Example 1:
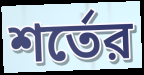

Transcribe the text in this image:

শর্তের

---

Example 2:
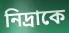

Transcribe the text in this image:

নিদ্রাকে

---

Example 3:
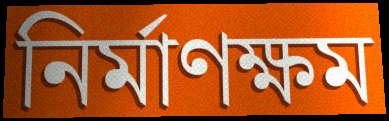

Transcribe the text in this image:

নির্মাণক্ষম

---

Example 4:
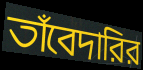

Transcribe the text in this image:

তাঁবেদারির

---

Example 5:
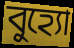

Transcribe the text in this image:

বুহ্যো